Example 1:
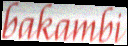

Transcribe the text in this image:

bakambi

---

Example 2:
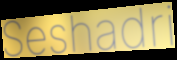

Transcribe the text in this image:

Seshadri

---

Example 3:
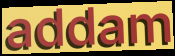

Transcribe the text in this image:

addam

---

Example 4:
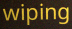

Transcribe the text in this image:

wiping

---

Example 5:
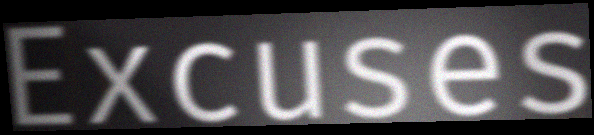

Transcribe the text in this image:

Excuses